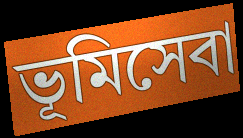
ভূমিসেবা